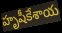
హృషీకేశాయ